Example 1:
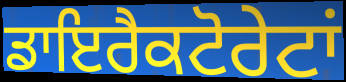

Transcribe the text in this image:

ਡਾਇਰੈਕਟੋਰੇਟਾਂ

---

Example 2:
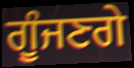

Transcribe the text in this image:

ਗੂੰਜਣਗੇ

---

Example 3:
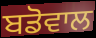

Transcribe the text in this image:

ਬਡੋਵਾਲ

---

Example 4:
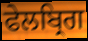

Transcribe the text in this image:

ਫੇਲਬ੍ਰਿਗ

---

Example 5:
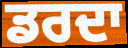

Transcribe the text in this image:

ਡਰਦਾ